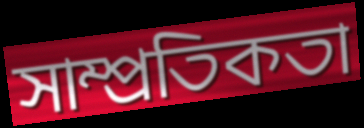
সাম্প্রতিকতা